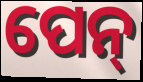
ପେନ୍